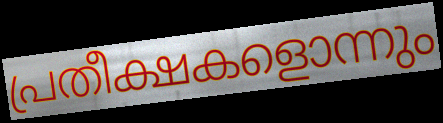
പ്രതീക്ഷകളൊന്നും